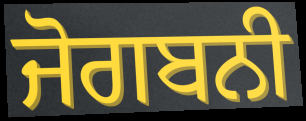
ਜੋਗਬਨੀ